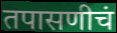
तपासणीचं